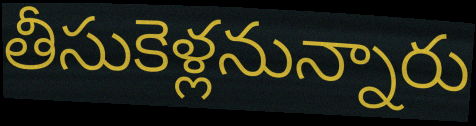
తీసుకెళ్లనున్నారు